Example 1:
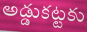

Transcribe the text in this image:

అడ్డుకట్టకు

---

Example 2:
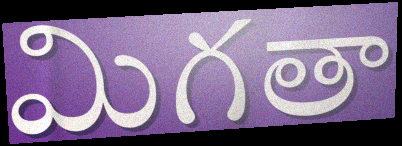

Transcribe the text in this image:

మిగతా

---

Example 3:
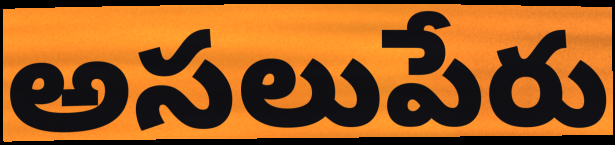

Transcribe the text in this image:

అసలుపేరు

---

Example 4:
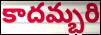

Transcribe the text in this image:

కాదమ్బరి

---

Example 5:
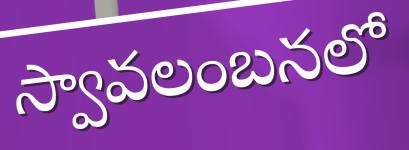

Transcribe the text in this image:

స్వావలంబనలో